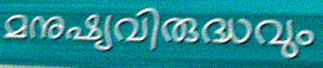
മനുഷ്യവിരുദ്ധവും